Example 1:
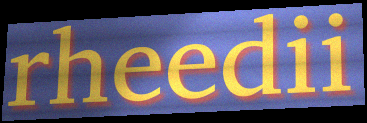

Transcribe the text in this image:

rheedii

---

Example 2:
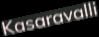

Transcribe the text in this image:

Kasaravalli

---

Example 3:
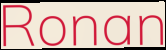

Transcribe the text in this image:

Ronan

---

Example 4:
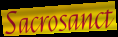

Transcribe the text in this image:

Sacrosanct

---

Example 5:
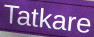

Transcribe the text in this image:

Tatkare